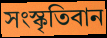
সংস্কৃতিবান